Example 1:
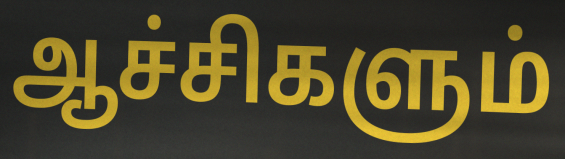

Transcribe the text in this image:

ஆச்சிகளும்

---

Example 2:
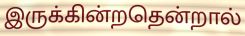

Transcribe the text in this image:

இருக்கின்றதென்றால்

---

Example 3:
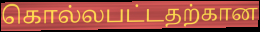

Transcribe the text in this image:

கொல்லபட்டதற்கான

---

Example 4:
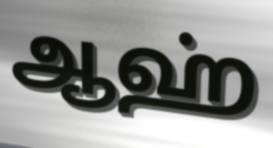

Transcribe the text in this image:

ஆஹ்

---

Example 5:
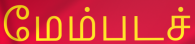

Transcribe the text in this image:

மேம்படச்